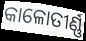
କାଳୋତୀର୍ଣ୍ଣ